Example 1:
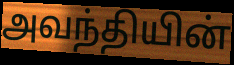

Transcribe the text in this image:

அவந்தியின்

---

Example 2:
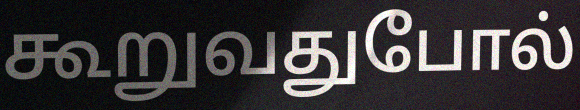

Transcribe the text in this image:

கூறுவதுபோல்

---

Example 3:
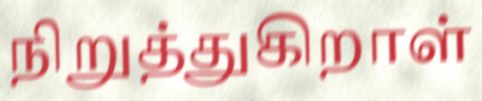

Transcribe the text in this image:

நிறுத்துகிறாள்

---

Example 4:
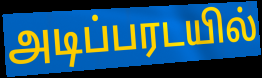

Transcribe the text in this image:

அடிப்பரடயில்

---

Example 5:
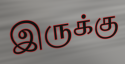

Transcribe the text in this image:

இருக்கு